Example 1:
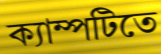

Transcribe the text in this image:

ক্যাম্পটিতে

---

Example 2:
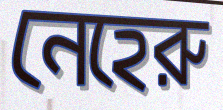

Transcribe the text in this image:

নেহেরু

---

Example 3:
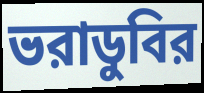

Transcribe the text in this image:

ভরাডুবির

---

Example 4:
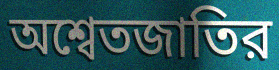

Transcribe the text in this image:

অশ্বেতজাতির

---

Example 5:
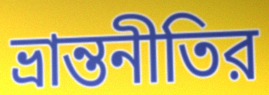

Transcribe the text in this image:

ভ্রান্তনীতির